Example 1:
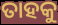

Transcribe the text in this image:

ତାହକୁ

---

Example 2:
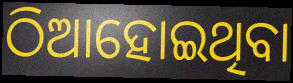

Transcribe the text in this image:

ଠିଆହୋଇଥିବା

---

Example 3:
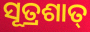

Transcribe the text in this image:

ସୂତ୍ରଶାତ୍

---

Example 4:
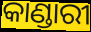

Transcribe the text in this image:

କାଣ୍ଡାରୀ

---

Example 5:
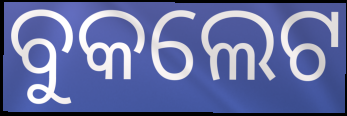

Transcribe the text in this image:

ବୁକଲେଟ